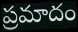
ప్రమాదం